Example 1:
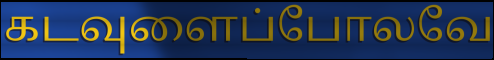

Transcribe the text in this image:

கடவுளைப்போலவே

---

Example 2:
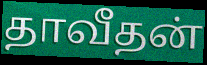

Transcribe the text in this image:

தாவீதன்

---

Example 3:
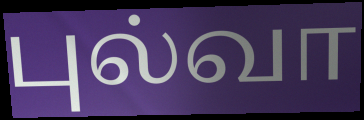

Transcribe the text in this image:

புல்வா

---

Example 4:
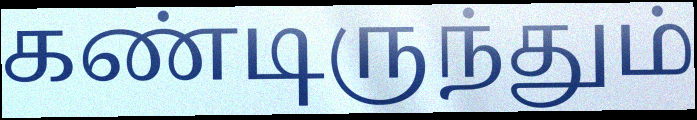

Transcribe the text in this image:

கண்டிருந்தும்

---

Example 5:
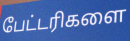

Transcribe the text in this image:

பேட்டரிகளை